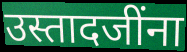
उस्तादजींना